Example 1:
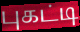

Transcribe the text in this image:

புகட்டி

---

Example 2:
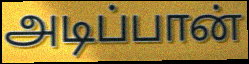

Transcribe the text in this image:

அடிப்பான்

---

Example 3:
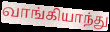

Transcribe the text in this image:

வாங்கியாந்து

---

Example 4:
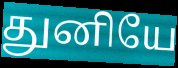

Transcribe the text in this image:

துனியே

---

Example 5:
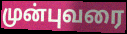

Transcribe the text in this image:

முன்புவரை